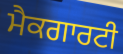
ਮੈਕਗਾਰਟੀ